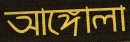
আঙ্গোলা